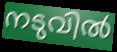
നടുവിൽ